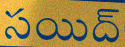
సయిద్